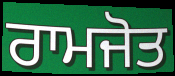
ਰਾਮਜੋਤ